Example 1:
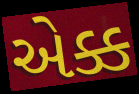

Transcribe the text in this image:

એક્ક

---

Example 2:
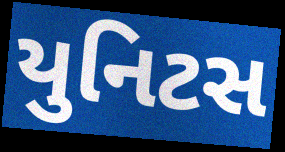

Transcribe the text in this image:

યુનિટસ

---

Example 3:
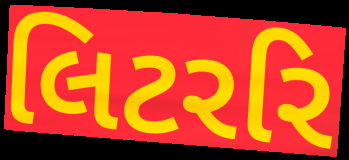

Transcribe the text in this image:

લિટરરિ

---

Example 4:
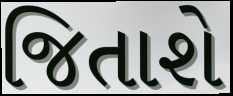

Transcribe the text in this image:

જિતાશે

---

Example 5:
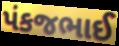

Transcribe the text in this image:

પંકજભાઈ